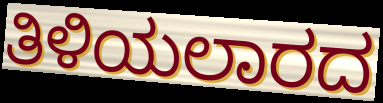
ತಿಳಿಯಲಾರದ